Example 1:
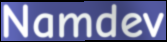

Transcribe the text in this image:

Namdev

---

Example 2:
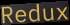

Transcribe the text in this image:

Redux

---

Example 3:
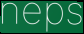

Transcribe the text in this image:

neps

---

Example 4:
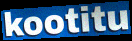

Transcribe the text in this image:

kootitu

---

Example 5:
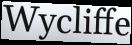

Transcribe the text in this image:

Wycliffe